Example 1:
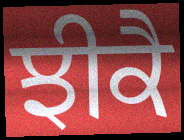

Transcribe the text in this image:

ਝੀਕੈ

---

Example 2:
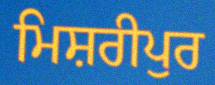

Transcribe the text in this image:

ਮਿਸ਼ਰੀਪੁਰ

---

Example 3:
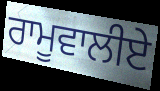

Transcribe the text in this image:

ਰਾਮੂਵਾਲੀਏ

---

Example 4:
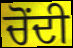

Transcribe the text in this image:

ਚੋੰਦੀ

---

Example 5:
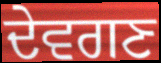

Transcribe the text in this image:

ਦੇਵਗਣ